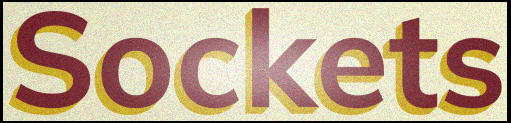
Sockets